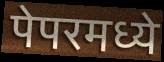
पेपरमध्ये